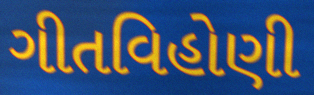
ગીતવિહોણી